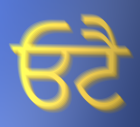
ਓਟੈ